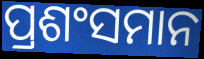
ପ୍ରଶଂସମାନ